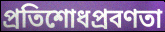
প্রতিশোধপ্রবণতা